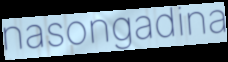
nasongadina